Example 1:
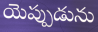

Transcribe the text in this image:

యెప్పుడును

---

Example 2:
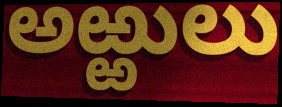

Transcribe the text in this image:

అఱ్ఱులు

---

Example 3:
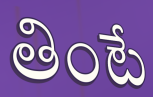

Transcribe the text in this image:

తింటే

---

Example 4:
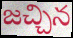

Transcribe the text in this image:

జచ్చిన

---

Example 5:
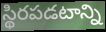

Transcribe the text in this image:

స్థిరపడటాన్ని